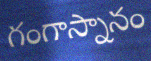
గంగాస్నానం